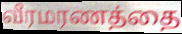
வீரமரணத்தை